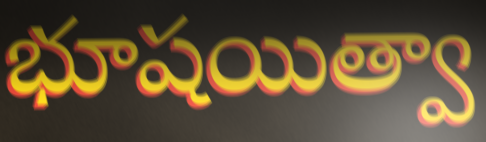
భూషయిత్వా